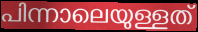
പിന്നാലെയുള്ളത്